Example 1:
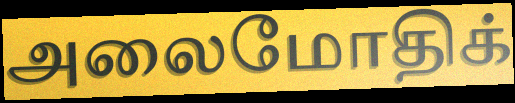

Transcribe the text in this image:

அலைமோதிக்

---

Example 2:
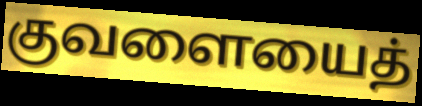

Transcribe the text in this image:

குவளையைத்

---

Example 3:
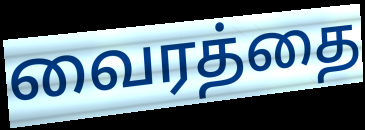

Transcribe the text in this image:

வைரத்தை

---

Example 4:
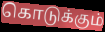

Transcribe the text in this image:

கொடுக்கும்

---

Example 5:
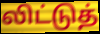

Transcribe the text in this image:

லிட்டுத்